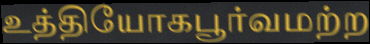
உத்தியோகபூர்வமற்ற